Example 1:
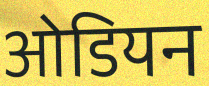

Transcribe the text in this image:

ओडियन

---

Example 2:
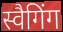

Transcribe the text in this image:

स्वैगिंग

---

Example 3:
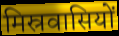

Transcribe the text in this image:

मिस्रवासियों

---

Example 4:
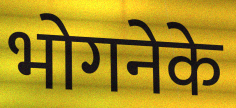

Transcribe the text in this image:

भोगनेके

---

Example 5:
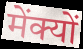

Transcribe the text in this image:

मेंक्यों